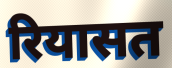
रियासत